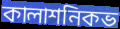
কালাশনিকভ